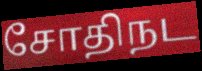
சோதிநட